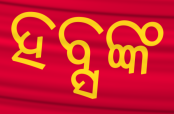
ହବ୍ସଙ୍କ